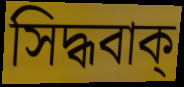
সিদ্ধবাক্